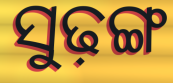
ସୁଢ଼ଙ୍ଗ